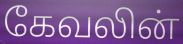
கேவலின்